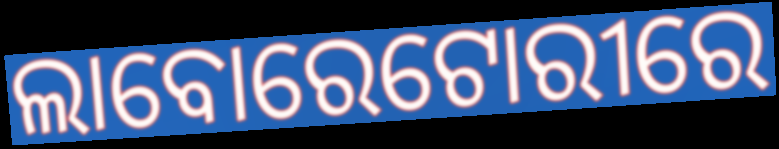
ଲାବୋରେଟୋରୀରେ